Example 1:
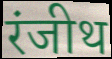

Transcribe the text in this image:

रंजीथ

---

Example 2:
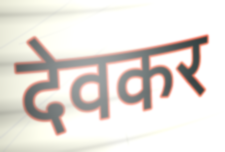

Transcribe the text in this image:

देवकर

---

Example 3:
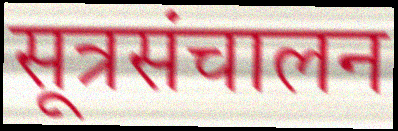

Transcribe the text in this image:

सूत्रसंचालन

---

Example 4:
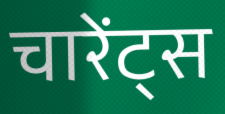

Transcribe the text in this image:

चारेंट्स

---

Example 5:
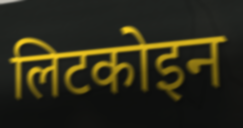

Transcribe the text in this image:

लिटकोइन